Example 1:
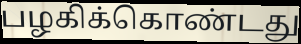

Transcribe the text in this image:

பழகிக்கொண்டது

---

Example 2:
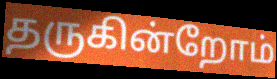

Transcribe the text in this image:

தருகின்றோம்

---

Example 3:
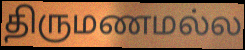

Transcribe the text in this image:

திருமணமல்ல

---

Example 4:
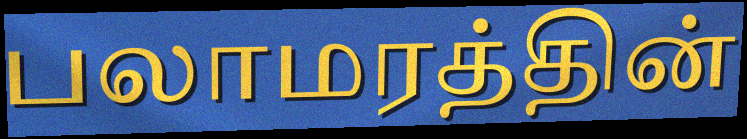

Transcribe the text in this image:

பலாமரத்தின்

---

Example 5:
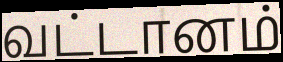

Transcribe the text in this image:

வட்டானம்